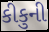
કીકુની